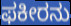
ಫಕೀರನು